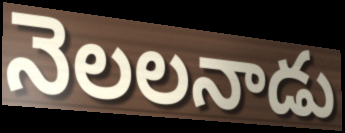
నెలలనాడు